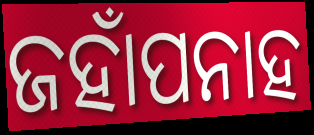
ଜହାଁପନାହ